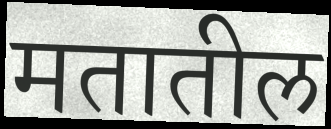
मतातील